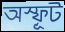
অস্ফূট